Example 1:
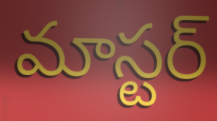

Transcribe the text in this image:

మాస్టర్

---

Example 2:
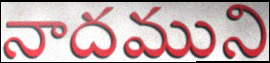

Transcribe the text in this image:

నాదముని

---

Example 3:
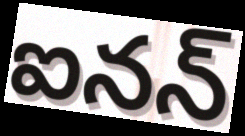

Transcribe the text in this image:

ఐనన్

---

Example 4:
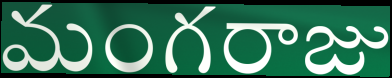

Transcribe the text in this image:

మంగరాజు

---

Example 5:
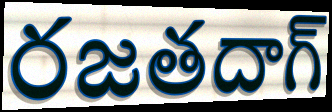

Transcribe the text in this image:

రజతదాగ్